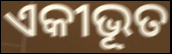
ଏକୀଭୂତ